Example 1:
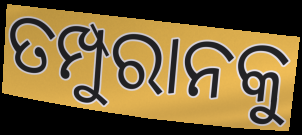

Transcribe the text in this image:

ତମ୍ପୁରାନକୁ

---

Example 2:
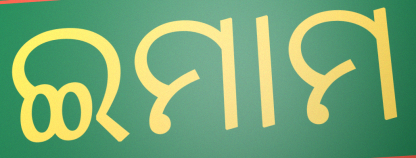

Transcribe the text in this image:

ଇମାମ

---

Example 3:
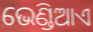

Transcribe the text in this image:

ଭେଣ୍ଡିଆଏ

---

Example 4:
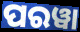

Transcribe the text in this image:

ପରୱା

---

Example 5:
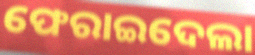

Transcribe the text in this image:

ଫେରାଇଦେଲା